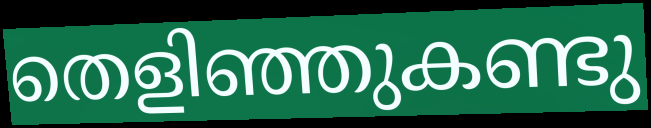
തെളിഞ്ഞുകണ്ടു